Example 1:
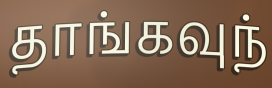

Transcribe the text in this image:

தாங்கவுந்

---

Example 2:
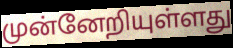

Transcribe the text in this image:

முன்னேறியுள்ளது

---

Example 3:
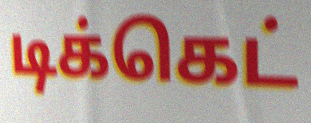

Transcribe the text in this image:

டிக்கெட்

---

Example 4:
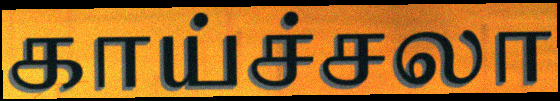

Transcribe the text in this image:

காய்ச்சலா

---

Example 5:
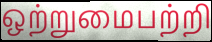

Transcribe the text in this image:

ஒற்றுமைபற்றி